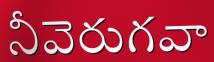
నీవెరుగవా